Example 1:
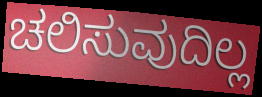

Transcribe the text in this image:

ಚಲಿಸುವುದಿಲ್ಲ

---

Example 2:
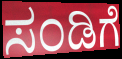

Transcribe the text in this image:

ಸಂಡಿಗೆ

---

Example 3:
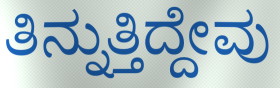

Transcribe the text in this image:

ತಿನ್ನುತ್ತಿದ್ದೇವು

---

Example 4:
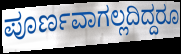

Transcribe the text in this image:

ಪೂರ್ಣವಾಗಲ್ಲದಿದ್ದರೂ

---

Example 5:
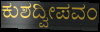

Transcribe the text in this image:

ಕುಶದ್ವೀಪವಂ